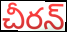
చీరన్